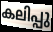
കലിപ്പു